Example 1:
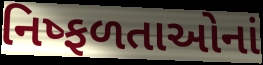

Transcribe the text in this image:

નિષ્ફળતાઓનાં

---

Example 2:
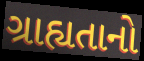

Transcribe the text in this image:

ગ્રાહ્યતાનો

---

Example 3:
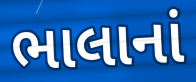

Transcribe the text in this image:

ભાલાનાં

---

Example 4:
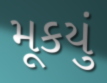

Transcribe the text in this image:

મૂકયું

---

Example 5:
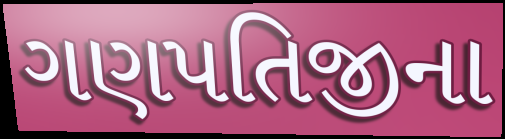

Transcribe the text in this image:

ગણપતિજીના